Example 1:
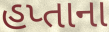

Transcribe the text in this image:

હપ્તાના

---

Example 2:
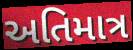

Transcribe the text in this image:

અતિમાત્ર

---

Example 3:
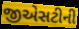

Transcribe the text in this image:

જીએસટીની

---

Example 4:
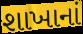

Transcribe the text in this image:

શાખાનાં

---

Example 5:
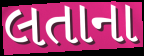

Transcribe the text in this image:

લતાના